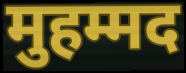
मुहम्मद